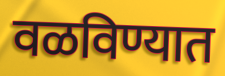
वळविण्यात